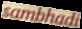
sambhadi